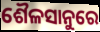
ଶୈଳସାନୁରେ